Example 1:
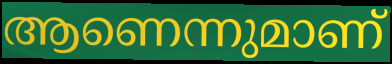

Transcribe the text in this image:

ആണെന്നുമാണ്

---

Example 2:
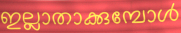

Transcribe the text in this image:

ഇല്ലാതാക്കുമ്പോൾ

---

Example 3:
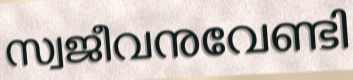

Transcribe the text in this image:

സ്വജീവനുവേണ്ടി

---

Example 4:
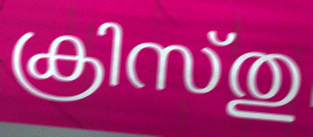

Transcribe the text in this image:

ക്രിസ്‌തു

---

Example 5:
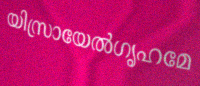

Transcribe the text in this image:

യിസ്രായേൽഗൃഹമേ